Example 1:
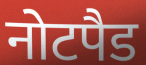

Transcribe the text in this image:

नोटपैड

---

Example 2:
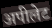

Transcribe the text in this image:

अपीलेट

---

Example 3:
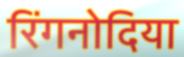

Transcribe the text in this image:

रिंगनोदिया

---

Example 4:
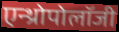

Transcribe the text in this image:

एन्थ्रोपोलॉजी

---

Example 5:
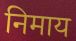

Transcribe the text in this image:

निमाय